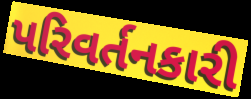
પરિવર્તનકારી